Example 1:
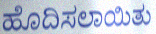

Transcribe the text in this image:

ಹೊದಿಸಲಾಯಿತು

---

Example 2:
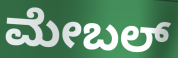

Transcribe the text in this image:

ಮೇಬಲ್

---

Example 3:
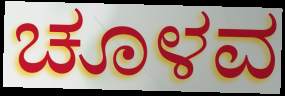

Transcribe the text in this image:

ಚೂಳವ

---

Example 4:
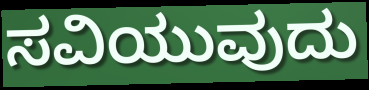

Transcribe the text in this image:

ಸವಿಯುವುದು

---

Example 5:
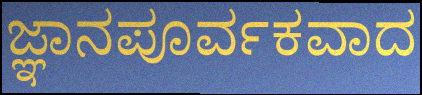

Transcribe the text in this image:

ಜ್ಞಾನಪೂರ್ವಕವಾದ